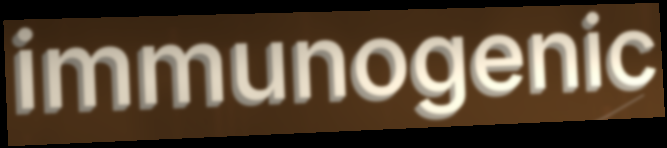
immunogenic